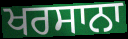
ਖਰਸਾਨਾ